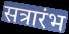
सत्रारंभ